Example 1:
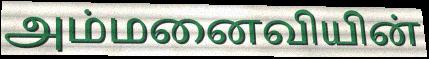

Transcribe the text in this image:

அம்மனைவியின்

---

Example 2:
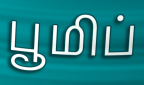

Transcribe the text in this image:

பூமிப்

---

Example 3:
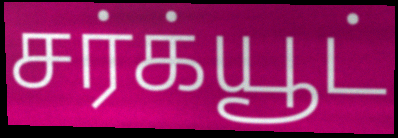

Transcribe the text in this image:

சர்க்யூட்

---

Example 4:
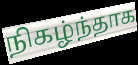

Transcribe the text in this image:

நிகழ்ந்தாக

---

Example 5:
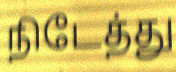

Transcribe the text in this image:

நிடேத்து